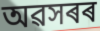
অৱসৰৰ